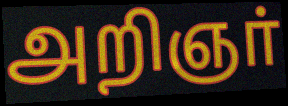
அறிஞர்